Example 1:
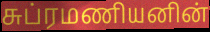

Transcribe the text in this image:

சுப்ரமணியனின்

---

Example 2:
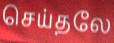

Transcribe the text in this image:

செய்தலே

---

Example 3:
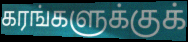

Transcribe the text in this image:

கரங்களுக்குக்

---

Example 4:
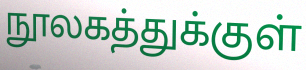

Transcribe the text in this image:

நூலகத்துக்குள்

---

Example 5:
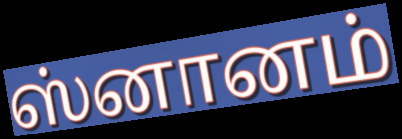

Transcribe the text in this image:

ஸ்னானம்